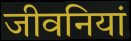
जीवनियां